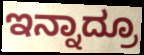
ಇನ್ನಾದ್ರೂ